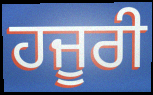
ਹਜੂਰੀ